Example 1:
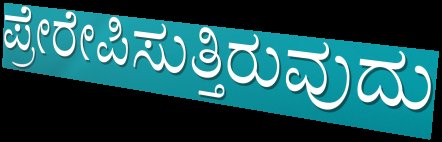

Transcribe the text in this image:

ಪ್ರೇರೇಪಿಸುತ್ತಿರುವುದು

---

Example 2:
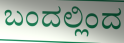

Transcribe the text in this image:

ಬಂದಲ್ಲಿಂದ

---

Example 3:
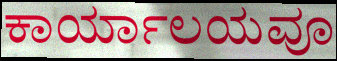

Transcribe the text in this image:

ಕಾರ್ಯಾಲಯವೂ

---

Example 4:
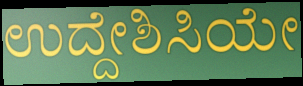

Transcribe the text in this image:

ಉದ್ದೇಶಿಸಿಯೇ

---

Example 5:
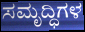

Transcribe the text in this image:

ಸಮೃದ್ಧಿಗಳ